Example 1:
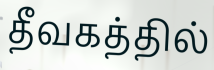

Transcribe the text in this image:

தீவகத்தில்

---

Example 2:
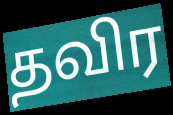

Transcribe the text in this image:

தவிர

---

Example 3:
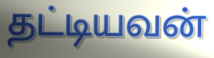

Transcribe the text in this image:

தட்டியவன்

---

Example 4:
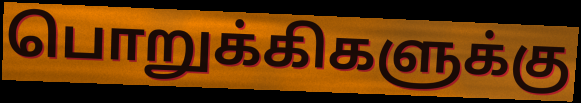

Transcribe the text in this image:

பொறுக்கிகளுக்கு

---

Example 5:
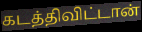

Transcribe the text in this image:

கடத்திவிட்டான்